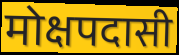
मोक्षपदासी